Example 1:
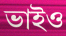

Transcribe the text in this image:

ভাইও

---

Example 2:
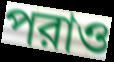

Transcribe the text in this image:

পরাও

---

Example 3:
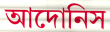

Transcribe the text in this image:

আদোনিস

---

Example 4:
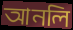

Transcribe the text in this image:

আনলি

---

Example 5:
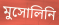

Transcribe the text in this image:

মুসোলিনি